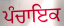
ਪੰਚਾਇਕ